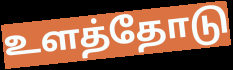
உளத்தோடு